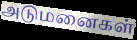
அடுமனைகள்